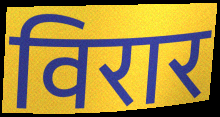
विरार